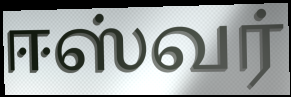
ஈஸ்வர்